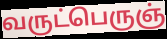
வருட்பெருஞ்